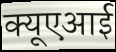
क्यूएआई